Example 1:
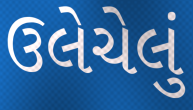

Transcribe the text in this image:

ઉલેચેલું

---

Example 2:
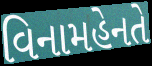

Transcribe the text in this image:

વિનામહેનતે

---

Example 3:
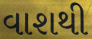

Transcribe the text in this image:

વાશથી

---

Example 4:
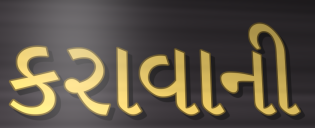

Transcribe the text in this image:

કરાવાની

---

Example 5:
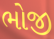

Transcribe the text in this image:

ભોજી